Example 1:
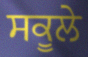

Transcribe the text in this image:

ਸਕੂਲੇ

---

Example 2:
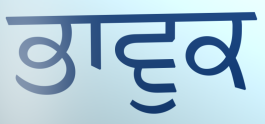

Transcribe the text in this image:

ਭਾਵੁਕ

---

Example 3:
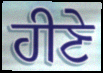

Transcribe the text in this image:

ਹੀਣੇ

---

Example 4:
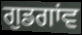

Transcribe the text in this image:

ਗੁਡਗਾਂਵ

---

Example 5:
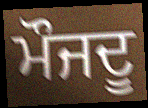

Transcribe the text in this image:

ਮੌਜਦੂ